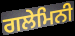
ਗਲੇਮਿਨੀ